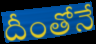
దీంతోనే